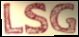
LSG